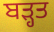
ਬੜ੍ਹਤ